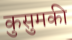
कुसुमकी